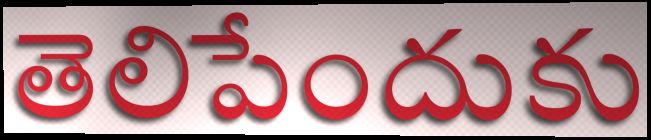
తెలిపేందుకు